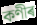
কণীৰ